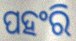
ପହଂରି